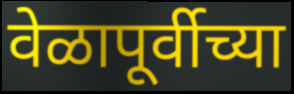
वेळापूर्वीच्या